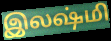
இலஷ்மி